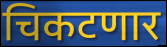
चिकटणार